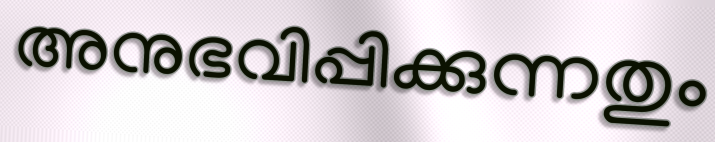
അനുഭവിപ്പിക്കുന്നതും